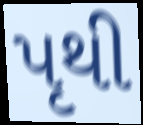
પૃથી